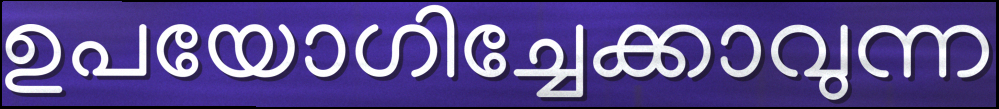
ഉപയോഗിച്ചേക്കാവുന്ന